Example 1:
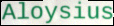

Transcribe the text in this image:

Aloysius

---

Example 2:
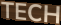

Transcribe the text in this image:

TECH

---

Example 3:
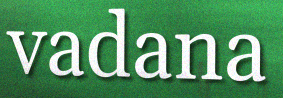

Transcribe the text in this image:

vadana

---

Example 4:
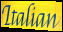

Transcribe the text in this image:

Italian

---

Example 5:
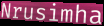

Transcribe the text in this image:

Nrusimha